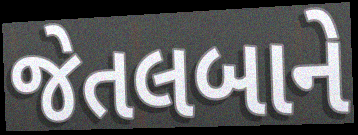
જેતલબાને